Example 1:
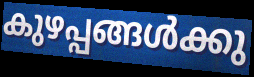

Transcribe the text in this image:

കുഴപ്പങ്ങൾക്കു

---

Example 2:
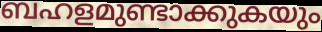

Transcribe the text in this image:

ബഹളമുണ്ടാക്കുകയും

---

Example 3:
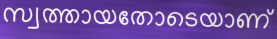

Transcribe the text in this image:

സ്വത്തായതോടെയാണ്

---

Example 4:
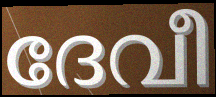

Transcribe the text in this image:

ദേവീ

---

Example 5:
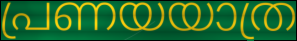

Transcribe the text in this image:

പ്രണയയാത്ര